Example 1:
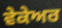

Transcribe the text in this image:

ਵੇਕੇਅਰ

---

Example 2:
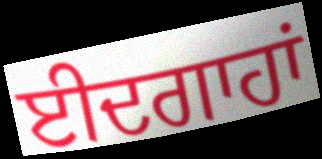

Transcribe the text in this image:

ਈਦਗਾਹਾਂ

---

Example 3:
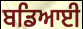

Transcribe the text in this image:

ਬਡਿਆਈ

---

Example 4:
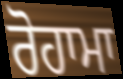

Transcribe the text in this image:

ਰੋਹਾਮਾ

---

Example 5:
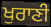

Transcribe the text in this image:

ਖੁਰਾਣੀ